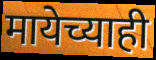
मायेच्याही